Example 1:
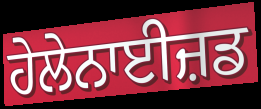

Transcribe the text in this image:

ਹੇਲੇਨਾਈਜ਼ਡ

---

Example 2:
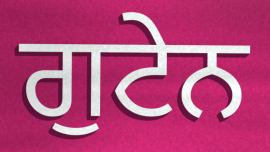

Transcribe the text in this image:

ਗੁਟੇਨ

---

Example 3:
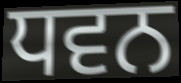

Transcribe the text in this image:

ਧਵਨ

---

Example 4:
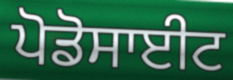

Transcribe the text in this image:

ਪੋਡੋਸਾਈਟ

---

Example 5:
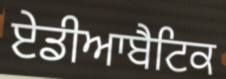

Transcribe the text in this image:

ਏਡੀਆਬੈਟਿਕ